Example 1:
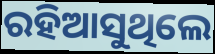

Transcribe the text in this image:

ରହିଆସୁଥିଲେ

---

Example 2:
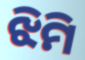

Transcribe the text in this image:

ଝିମି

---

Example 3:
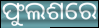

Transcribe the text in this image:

ଫୁଲଶରେ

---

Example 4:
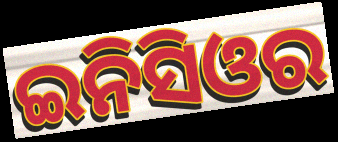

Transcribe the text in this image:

ଇନିସିଓର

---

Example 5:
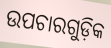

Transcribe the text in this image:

ଉପଚାରଗୁଡ଼ିକ